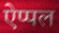
ऐप्पल